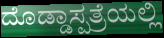
ದೊಡ್ಡಾಸ್ಪತ್ರೆಯಲ್ಲಿ